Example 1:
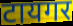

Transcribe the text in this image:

टायगर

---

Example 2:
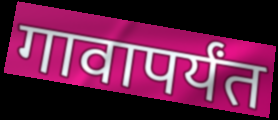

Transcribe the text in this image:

गावापर्यंत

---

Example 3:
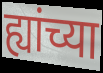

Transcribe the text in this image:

ह्यांच्या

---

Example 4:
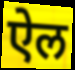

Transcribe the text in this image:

ऐल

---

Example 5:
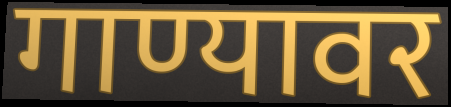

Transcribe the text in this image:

गाण्यावर